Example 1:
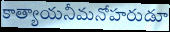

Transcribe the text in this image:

కాత్యాయనీమనోహరుడూ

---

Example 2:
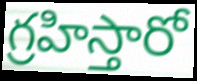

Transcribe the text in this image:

గ్రహిస్తారో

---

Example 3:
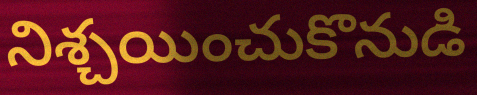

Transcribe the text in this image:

నిశ్చయించుకొనుడి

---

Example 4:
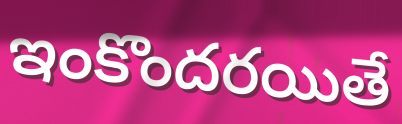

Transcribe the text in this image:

ఇంకొందరయితే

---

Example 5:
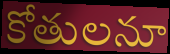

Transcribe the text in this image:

కోతులనూ